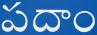
పదాం